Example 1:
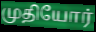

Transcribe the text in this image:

முதியோர்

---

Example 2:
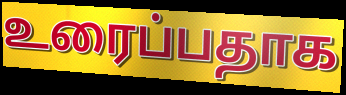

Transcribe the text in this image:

உரைப்பதாக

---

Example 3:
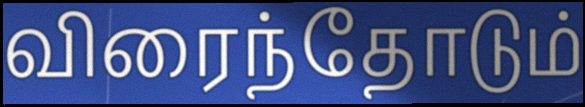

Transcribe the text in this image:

விரைந்தோடும்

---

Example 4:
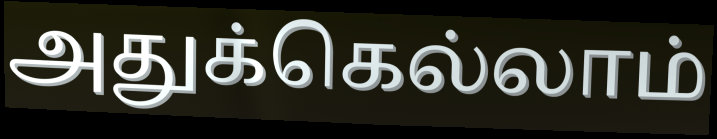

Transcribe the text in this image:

அதுக்கெல்லாம்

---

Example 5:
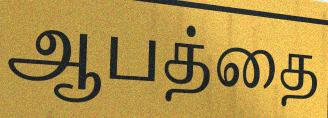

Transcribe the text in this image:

ஆபத்தை